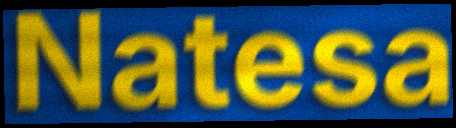
Natesa